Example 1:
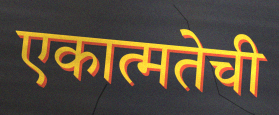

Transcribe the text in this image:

एकात्मतेची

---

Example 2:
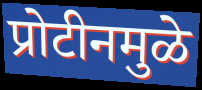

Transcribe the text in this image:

प्रोटीनमुळे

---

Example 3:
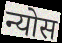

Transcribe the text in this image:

न्योस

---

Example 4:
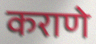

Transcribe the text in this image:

कराणे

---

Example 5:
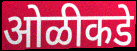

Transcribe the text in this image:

ओळीकडे